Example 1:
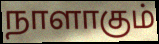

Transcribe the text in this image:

நாளாகும்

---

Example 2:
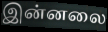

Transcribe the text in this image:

இன்னலை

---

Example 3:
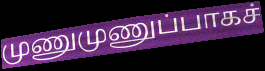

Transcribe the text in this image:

முணுமுணுப்பாகச்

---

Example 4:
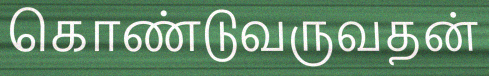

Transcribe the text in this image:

கொண்டுவருவதன்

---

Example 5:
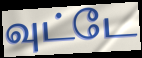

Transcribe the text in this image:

வுட்டே